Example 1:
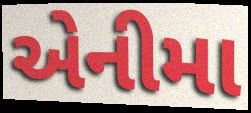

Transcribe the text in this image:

એનીમા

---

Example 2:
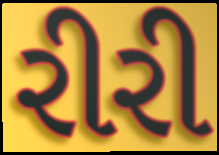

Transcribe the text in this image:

રીરી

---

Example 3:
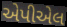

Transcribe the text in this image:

એપીએલ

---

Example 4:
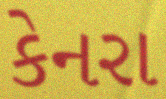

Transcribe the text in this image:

કેનરા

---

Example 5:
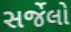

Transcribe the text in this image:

સર્જેલો